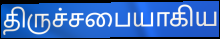
திருச்சபையாகிய